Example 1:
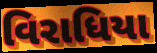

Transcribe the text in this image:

વિરાધિયા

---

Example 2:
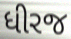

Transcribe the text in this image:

ધીરજ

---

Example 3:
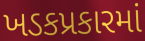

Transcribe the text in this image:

ખડકપ્રકારમાં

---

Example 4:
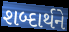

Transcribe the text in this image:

શબ્દાર્થને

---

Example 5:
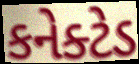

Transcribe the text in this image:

કનેક્ટેડ